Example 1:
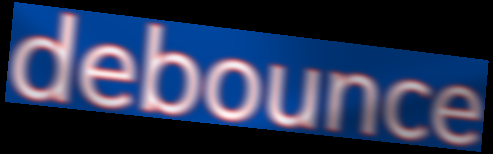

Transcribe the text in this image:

debounce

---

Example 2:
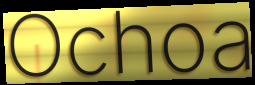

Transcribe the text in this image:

Ochoa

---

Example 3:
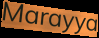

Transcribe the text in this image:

Marayya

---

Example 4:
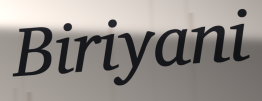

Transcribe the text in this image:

Biriyani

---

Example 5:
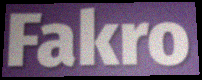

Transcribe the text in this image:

Fakro